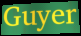
Guyer